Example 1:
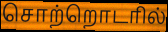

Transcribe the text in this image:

சொற்றொடரில்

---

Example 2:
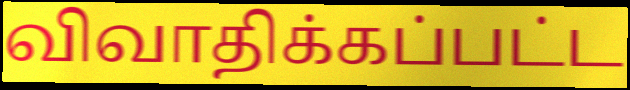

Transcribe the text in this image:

விவாதிக்கப்பட்ட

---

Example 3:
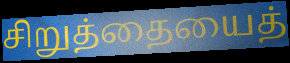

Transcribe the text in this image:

சிறுத்தையைத்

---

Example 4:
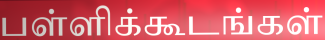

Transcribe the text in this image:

பள்ளிக்கூடங்கள்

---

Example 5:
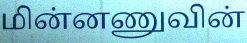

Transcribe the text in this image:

மின்னணுவின்